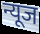
न्यूज